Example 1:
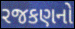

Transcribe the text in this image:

રજકણનો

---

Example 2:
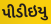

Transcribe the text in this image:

પીડીઇયુ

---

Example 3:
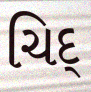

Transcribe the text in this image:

ચિદ્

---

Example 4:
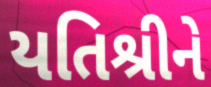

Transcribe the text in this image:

યતિશ્રીને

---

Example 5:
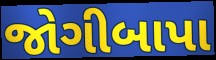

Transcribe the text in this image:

જોગીબાપા